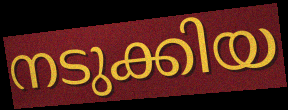
നടുക്കിയ